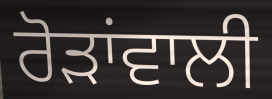
ਰੋੜਾਂਵਾਲੀ